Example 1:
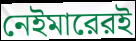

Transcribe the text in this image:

নেইমারেরই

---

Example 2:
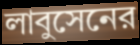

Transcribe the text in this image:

লাবুসেনের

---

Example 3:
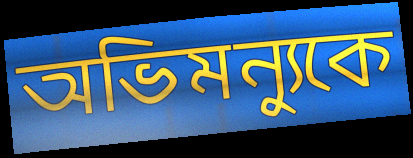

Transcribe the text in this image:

অভিমন্যুকে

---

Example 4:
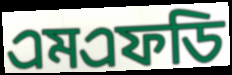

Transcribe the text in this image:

এমএফডি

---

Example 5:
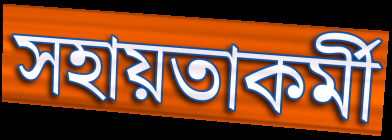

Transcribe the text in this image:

সহায়তাকর্মী